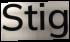
Stig